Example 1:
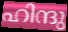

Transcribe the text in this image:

ഹിന്ദു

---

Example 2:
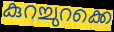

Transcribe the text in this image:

കുറച്ചുറക്കെ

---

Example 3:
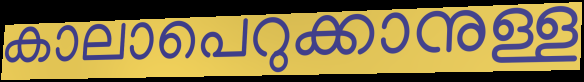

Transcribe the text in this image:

കാലാപെറുക്കാനുള്ള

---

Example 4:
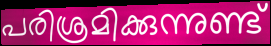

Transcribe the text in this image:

പരിശ്രമിക്കുന്നുണ്ട്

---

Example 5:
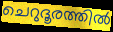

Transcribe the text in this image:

ചെറുദൂരത്തിൽ